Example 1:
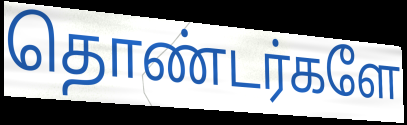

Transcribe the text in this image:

தொண்டர்களே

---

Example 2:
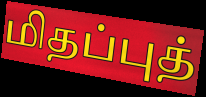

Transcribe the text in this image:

மிதப்புத்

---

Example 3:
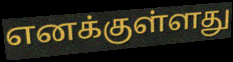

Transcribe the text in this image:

எனக்குள்ளது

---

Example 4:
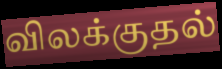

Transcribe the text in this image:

விலக்குதல்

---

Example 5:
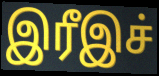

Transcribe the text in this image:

இரீஇச்